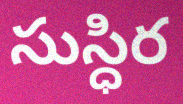
సుస్ధిర